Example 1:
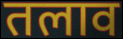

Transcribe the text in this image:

तलाव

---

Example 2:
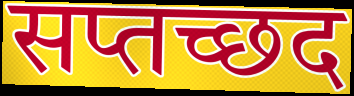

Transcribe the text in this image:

सप्तच्छद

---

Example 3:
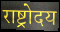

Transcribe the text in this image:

राष्ट्रोदय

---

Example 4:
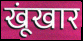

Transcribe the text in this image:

खूंखार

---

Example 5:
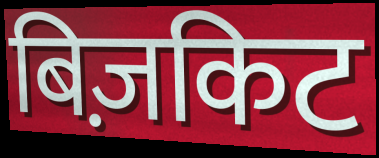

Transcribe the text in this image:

बिज़किट